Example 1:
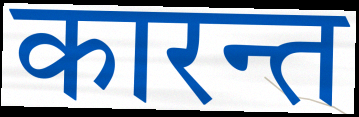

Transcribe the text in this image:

कारन्त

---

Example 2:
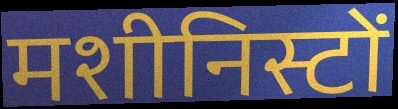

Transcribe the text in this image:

मशीनिस्टों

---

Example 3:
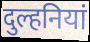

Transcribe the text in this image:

दुल्हनियां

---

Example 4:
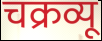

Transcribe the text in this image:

चक्रव्यू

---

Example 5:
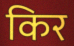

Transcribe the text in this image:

किर